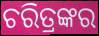
ଚରିତ୍ରଙ୍କର